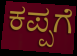
ಕಪ್ಪಗೆ